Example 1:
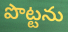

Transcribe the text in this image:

పొట్టను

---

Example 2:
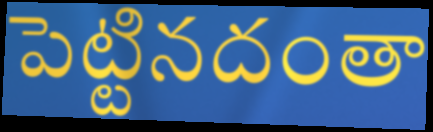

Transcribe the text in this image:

పెట్టినదంతా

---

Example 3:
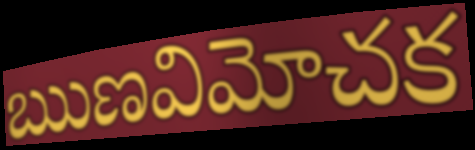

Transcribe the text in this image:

ఋణవిమోచక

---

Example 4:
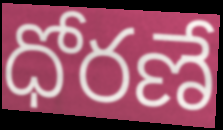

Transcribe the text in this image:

ధోరణే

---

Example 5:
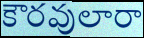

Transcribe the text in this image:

కౌరవులారా